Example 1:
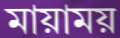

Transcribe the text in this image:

মায়াময়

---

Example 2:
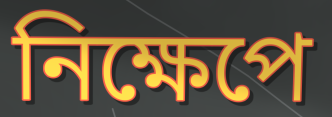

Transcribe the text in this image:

নিক্ষেপে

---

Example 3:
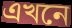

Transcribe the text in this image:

এখনে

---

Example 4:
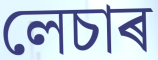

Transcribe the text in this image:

লেচাৰ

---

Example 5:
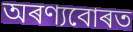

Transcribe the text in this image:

অৰণ্যবোৰত